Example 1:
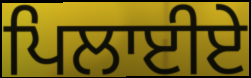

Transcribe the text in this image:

ਪਿਲਾਈਏ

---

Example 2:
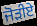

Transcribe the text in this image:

ਜੋੜੀਏ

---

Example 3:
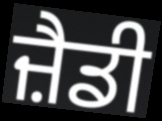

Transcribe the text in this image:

ਜ਼ੈਡੀ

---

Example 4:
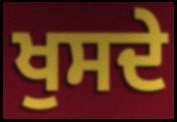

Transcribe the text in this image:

ਖੁਸਦੇ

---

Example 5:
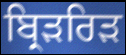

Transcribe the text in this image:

ਬ੍ਰਿੜਰਿੜ